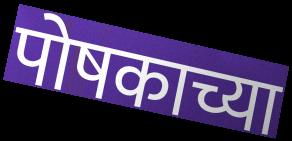
पोषकाच्या